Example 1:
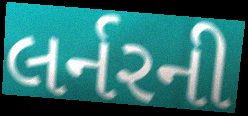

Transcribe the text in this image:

લર્નરની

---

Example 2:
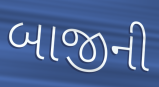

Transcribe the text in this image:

બાજીની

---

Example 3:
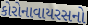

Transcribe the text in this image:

કોરોનાવાયરસનો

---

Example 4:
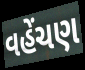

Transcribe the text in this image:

વહેંચણ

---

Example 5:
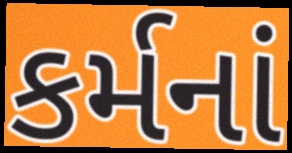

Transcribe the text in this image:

કર્મનાં